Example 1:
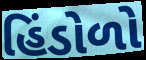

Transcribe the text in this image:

હિંડોળો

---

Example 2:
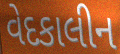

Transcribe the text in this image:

વેદકાલીન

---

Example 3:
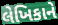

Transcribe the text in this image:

લેખિકાને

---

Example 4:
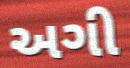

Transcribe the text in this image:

અગી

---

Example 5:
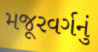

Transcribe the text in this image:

મજૂરવર્ગનું